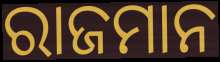
ରାଜମାନ